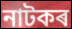
নাটকৰ